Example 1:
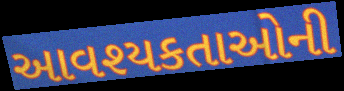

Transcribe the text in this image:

આવશ્યકતાઓની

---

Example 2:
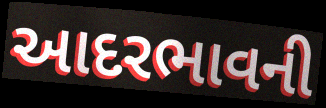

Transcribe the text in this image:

આદરભાવની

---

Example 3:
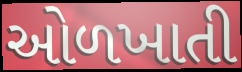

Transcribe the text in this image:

ઓળખાતી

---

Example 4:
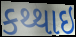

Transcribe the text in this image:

કથ્થાઇ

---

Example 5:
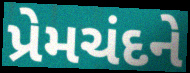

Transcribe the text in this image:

પ્રેમચંદને